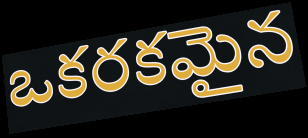
ఒకరకమైన